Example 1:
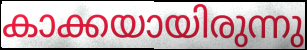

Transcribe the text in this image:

കാക്കയായിരുന്നു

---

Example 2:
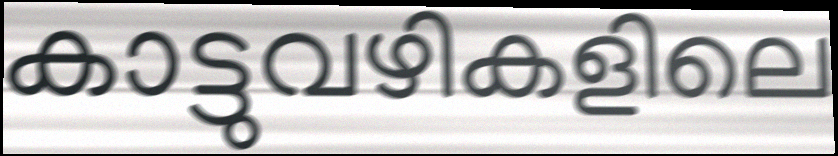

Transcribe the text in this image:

കാട്ടുവഴികളിലെ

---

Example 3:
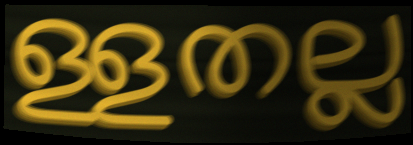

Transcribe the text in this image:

ള്ളതല്ല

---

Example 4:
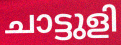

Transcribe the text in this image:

ചാട്ടുളി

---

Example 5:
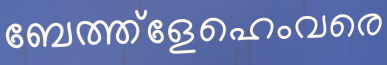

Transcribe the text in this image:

ബേത്ത്ളേഹെംവരെ